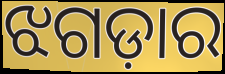
ଝଗଡ଼ାର